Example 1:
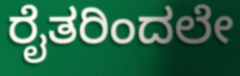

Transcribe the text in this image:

ರೈತರಿಂದಲೇ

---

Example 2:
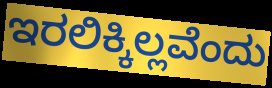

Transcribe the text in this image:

ಇರಲಿಕ್ಕಿಲ್ಲವೆಂದು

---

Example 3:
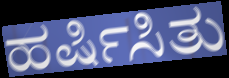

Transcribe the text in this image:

ಹರ್ಷಿಸಿತು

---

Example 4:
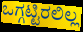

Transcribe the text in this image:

ಒಗ್ಗಟ್ಟಿರಲಿಲ್ಲ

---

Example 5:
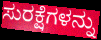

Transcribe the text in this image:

ಸುರಕ್ಷೆಗಳನ್ನು